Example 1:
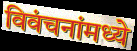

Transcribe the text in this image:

विवंचनांमध्ये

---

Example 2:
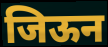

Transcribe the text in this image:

जिऊन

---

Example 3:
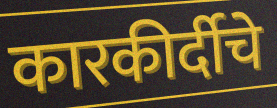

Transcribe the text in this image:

कारकीर्दीचे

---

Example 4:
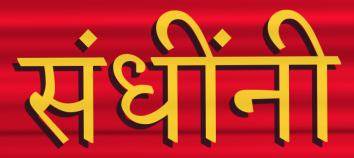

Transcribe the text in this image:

संधींनी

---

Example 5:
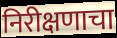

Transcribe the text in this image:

निरीक्षणाचा